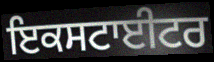
ਇਕਸਟਾਈਟਰ